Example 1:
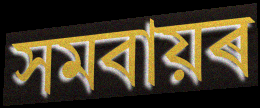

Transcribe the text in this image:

সমবায়ৰ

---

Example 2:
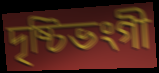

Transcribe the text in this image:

দৃষ্টিভংগী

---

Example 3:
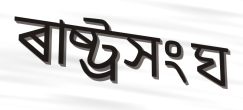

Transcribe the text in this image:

ৰাষ্ট্ৰসংঘ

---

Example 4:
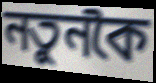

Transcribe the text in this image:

নতুনকৈ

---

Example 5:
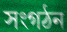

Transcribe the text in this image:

সংগঠন